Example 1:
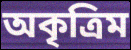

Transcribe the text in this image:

অকৃত্রিম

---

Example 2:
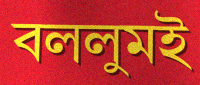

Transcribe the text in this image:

বললুমই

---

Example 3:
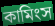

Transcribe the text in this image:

কামিংস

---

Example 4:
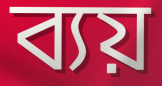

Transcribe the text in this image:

ব্যয়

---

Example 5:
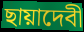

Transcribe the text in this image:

ছায়াদেবী